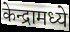
केन्द्रामध्ये